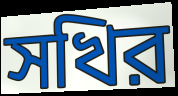
সখির